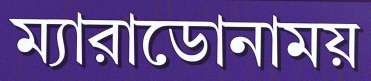
ম্যারাডোনাময়